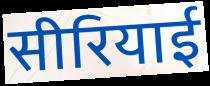
सीरियाई